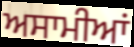
ਅਸਾਮੀਆਂ